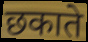
छकाते